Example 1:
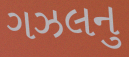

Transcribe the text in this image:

ગઝલનુ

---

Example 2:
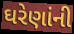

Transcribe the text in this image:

ઘરેણાંની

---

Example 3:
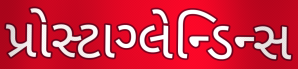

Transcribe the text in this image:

પ્રોસ્ટાગ્લેન્ડિન્સ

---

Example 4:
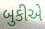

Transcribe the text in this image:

બુકીએ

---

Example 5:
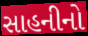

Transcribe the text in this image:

સાહનીનો